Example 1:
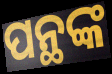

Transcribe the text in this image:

ପନ୍ଥଙ୍କ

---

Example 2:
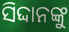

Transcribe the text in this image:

ସିଦ୍ଦାନଙ୍କୁ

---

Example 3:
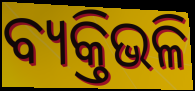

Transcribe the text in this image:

ବ୍ୟକ୍ତିଭଳି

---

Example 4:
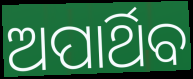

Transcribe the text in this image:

ଅପାର୍ଥିବ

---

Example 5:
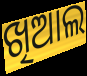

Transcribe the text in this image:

ଖିଆଲ